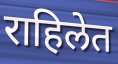
राहिलेत